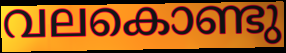
വലകൊണ്ടു